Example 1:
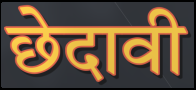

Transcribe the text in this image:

छेदावी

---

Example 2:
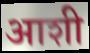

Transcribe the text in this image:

आशी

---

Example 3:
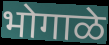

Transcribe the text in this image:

भोगाळे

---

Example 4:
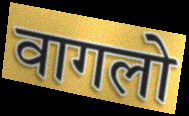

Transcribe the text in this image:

वागलो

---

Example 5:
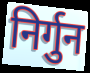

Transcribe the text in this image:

निर्गुन